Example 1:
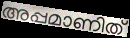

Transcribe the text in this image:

അപ്പമാണിത്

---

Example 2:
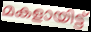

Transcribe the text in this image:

മകളായിട്ട്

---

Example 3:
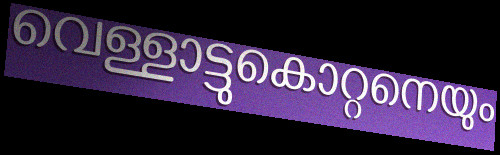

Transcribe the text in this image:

വെള്ളാട്ടുകൊറ്റനെയും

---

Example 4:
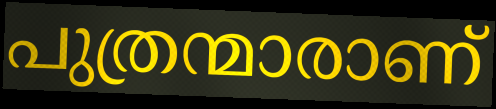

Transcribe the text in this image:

പുത്രന്മാരാണ്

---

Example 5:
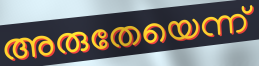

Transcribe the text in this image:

അരുതേയെന്ന്